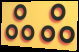
ஃஃ